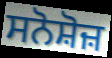
ਸਨੋਸ਼ੋਜ਼